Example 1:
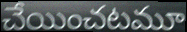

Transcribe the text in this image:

చేయించటమూ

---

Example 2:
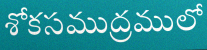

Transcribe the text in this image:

శోకసముద్రములో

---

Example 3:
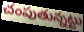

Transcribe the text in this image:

చంపుతున్నట్టు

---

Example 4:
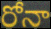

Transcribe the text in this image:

రోనా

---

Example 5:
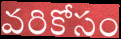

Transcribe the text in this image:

వరికోసం